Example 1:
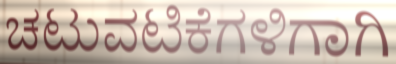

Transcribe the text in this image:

ಚಟುವಟಿಕೆಗಳಿಗಾಗಿ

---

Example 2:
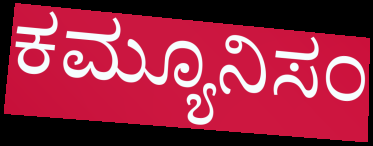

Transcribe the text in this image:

ಕಮ್ಯೂನಿಸಂ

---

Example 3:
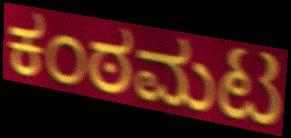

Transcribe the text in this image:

ಕಂಠಮಟ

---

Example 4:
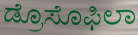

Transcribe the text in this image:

ಡ್ರೊಸೊಫಿಲಾ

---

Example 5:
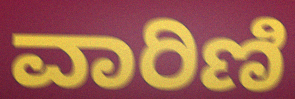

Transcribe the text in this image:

ವಾರಿಣಿ